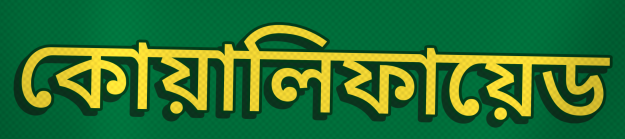
কোয়ালিফায়েড